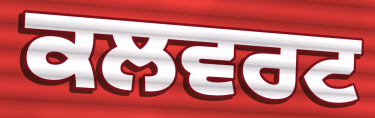
ਕਲਵਰਟ